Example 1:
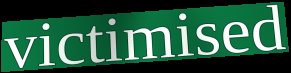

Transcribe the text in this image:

victimised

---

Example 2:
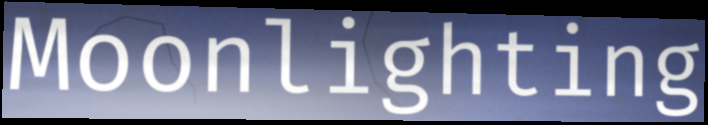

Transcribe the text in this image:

Moonlighting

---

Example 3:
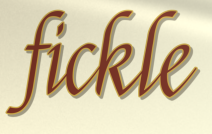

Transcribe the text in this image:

fickle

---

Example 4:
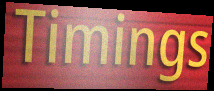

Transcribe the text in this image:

Timings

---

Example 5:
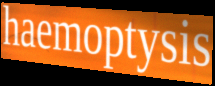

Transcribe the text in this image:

haemoptysis